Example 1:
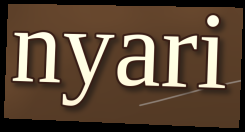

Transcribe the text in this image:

nyari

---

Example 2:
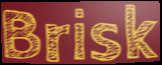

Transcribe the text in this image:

Brisk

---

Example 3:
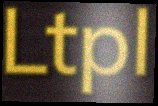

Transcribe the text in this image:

Ltpl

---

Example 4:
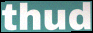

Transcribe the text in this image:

thud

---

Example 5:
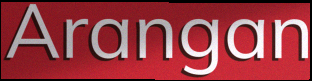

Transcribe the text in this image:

Arangan